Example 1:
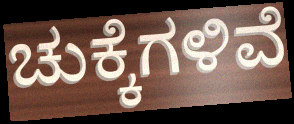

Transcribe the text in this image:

ಚುಕ್ಕೆಗಳಿವೆ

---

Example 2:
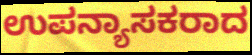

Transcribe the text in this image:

ಉಪನ್ಯಾಸಕರಾದ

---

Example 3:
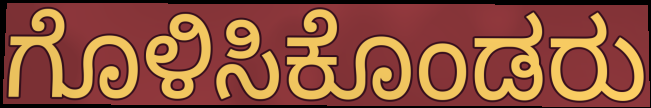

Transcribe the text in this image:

ಗೊಳಿಸಿಕೊಂಡರು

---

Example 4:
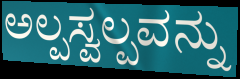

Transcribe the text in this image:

ಅಲ್ಪಸ್ವಲ್ಪವನ್ನು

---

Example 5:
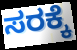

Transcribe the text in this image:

ಸರಕ್ಕೆ